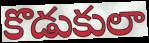
కొడుకులా